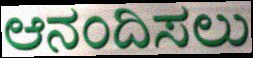
ಆನಂದಿಸಲು